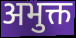
अभुक्त